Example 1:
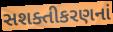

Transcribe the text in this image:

સશક્તીકરણનાં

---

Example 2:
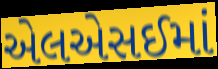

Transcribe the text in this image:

એલએસઈમાં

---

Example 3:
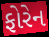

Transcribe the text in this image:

ફોરેન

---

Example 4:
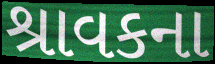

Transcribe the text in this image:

શ્રાવકના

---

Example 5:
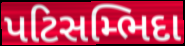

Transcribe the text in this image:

પટિસમ્ભિદા